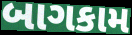
બાગકામ